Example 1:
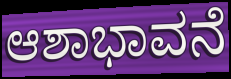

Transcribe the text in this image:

ಆಶಾಭಾವನೆ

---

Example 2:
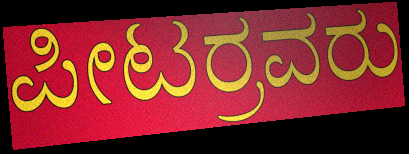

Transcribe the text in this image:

ಪೀಟರ್‍ರವರು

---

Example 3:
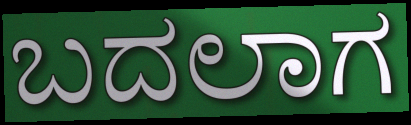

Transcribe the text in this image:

ಬದಲಾಗ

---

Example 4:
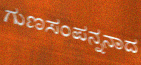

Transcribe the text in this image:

ಗುಣಸಂಪನ್ನನಾದ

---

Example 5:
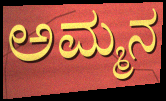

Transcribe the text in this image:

ಅಮ್ಮನ